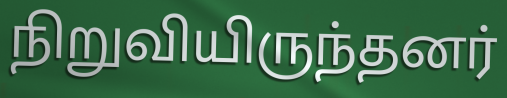
நிறுவியிருந்தனர்